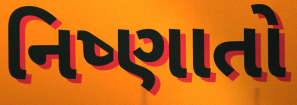
નિષ્ણાતો